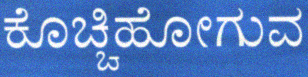
ಕೊಚ್ಚಿಹೋಗುವ